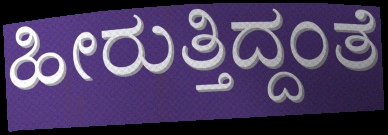
ಹೀರುತ್ತಿದ್ದಂತೆ